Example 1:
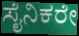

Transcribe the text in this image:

ಸೈನಿಕರೇ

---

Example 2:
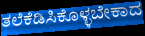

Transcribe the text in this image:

ತಲೆಕೆಡಿಸಿಕೊಳ್ಳಬೇಕಾದ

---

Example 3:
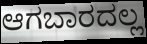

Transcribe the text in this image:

ಆಗಬಾರದಲ್ಲ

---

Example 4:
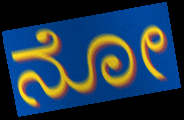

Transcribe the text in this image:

ನೋ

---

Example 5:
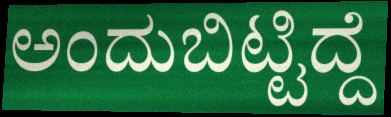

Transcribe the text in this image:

ಅಂದುಬಿಟ್ಟಿದ್ದೆ